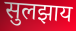
सुलझाय